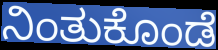
ನಿಂತುಕೊಂಡೆ